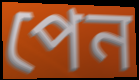
পেন